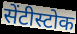
सेंटीस्टोक